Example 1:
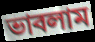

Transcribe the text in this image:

ভাবলাম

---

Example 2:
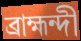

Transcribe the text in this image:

ব্রাহ্মন্দী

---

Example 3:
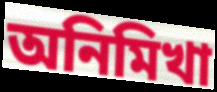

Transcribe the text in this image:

অনিমিখা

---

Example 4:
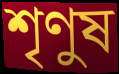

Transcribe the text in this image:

শৃণুষ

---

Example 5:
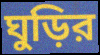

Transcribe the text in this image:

ঘুড়ির